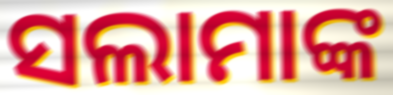
ସଲାମାଙ୍କ